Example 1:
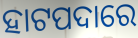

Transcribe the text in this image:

ହାଟପଦାରେ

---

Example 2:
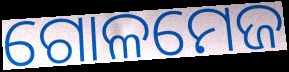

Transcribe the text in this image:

ଗୋଳମେଜ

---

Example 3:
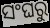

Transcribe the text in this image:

ସଂଘରୁ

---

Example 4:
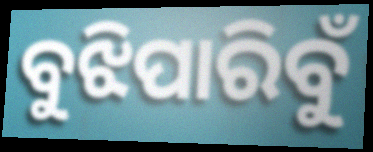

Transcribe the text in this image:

ବୁଝିପାରିବୁଁ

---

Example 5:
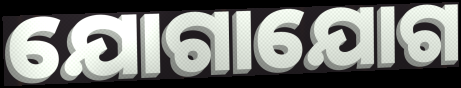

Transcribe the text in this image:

ଯୋଗାଯୋଗ